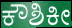
ಕೌಶಿಕೀ